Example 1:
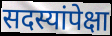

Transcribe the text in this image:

सदस्यांपेक्षा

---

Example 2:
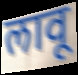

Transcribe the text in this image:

लावू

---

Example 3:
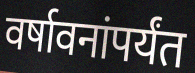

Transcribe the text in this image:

वर्षावनांपर्यंत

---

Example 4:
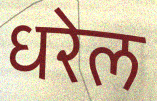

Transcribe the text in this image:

धरेल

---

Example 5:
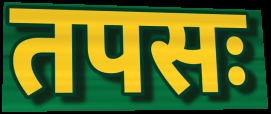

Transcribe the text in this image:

तपसः